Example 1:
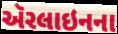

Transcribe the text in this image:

ઍરલાઇનના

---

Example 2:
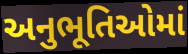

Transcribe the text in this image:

અનુભૂતિઓમાં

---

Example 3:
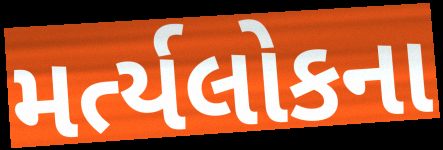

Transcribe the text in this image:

મર્ત્યલોકના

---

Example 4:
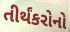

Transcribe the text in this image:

તીર્થંકરોનો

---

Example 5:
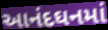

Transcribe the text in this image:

આનંદઘનમાં